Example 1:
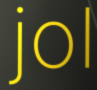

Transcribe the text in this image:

jol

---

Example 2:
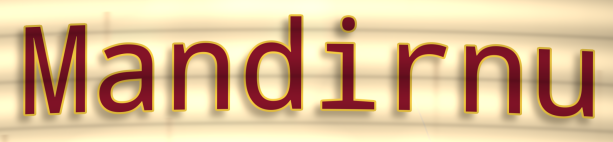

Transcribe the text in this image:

Mandirnu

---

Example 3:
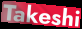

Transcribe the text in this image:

Takeshi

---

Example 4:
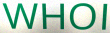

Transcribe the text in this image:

WHOI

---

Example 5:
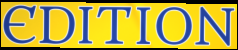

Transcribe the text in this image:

EDITION